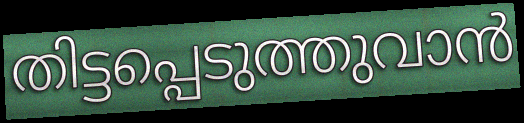
തിട്ടപ്പെടുത്തുവാൻ